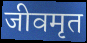
जीवमृत